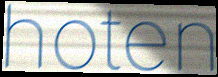
hoten